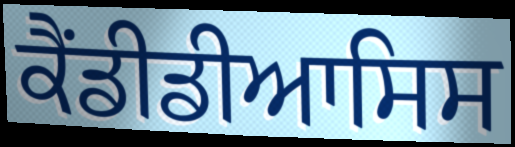
ਕੈਂਡੀਡੀਆਸਿਸ